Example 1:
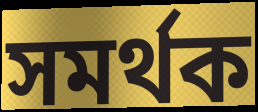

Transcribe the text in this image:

সমৰ্থক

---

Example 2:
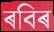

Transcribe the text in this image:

ৰবিৰ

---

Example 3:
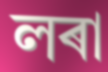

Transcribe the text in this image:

লৰা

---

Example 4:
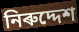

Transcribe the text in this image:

নিৰুদ্দেশ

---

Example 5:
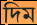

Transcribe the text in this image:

দিম